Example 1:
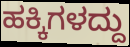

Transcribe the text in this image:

ಹಕ್ಕಿಗಳದ್ದು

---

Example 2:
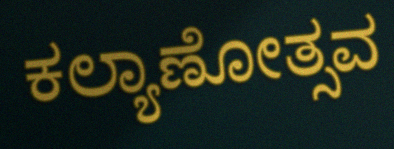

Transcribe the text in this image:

ಕಲ್ಯಾಣೋತ್ಸವ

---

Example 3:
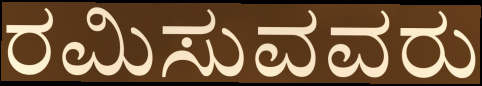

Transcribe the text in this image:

ರಮಿಸುವವರು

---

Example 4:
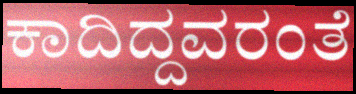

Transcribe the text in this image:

ಕಾದಿದ್ದವರಂತೆ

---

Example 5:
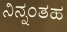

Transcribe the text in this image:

ನಿನ್ನಂತಹ